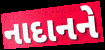
નાદાનને